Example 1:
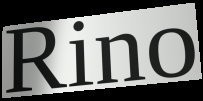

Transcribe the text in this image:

Rino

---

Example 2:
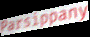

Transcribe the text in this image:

Parsippany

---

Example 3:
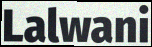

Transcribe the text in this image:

Lalwani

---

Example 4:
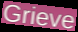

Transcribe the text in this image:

Grieve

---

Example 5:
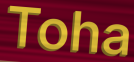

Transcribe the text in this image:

Toha